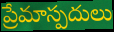
ప్రేమాస్పదులు